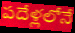
పదేళ్లలోనే